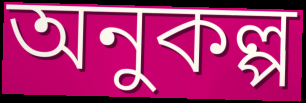
অনুকল্প